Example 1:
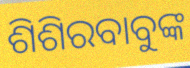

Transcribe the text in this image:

ଶିଶିରବାବୁଙ୍କ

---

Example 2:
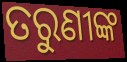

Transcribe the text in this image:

ତରୁଣୀଙ୍କ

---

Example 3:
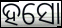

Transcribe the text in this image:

ହସୋ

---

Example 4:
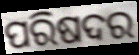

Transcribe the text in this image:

ପରିଷଦର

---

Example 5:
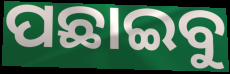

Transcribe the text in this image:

ପଛାଇବୁ